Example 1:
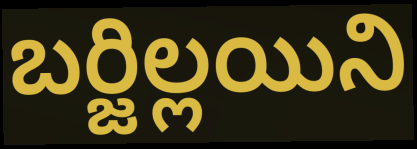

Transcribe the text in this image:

బర్జిల్లయిని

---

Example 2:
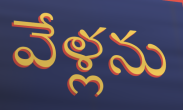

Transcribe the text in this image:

వేళ్లను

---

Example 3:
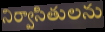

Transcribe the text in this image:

నిర్వాసితులను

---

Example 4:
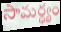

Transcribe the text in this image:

సామర్ధ్యం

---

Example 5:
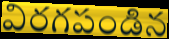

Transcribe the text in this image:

విరగపండిన